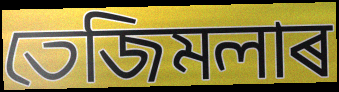
তেজিমলাৰ